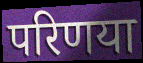
परिणया